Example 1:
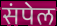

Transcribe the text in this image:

संपेल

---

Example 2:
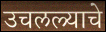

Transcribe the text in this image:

उचलल्याचे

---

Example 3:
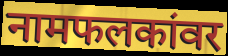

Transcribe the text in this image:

नामफलकांवर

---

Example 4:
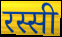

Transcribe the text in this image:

रस्सी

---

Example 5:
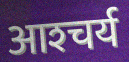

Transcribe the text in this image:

आश्‍चर्य